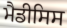
ਮੈਡੀਸਿਸ